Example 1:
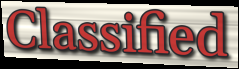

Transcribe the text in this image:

Classified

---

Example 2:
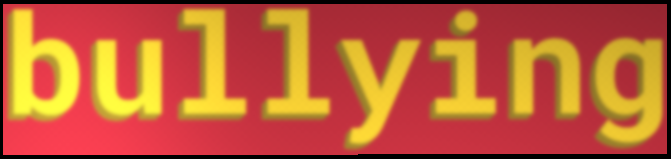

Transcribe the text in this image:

bullying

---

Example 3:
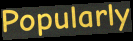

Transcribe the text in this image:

Popularly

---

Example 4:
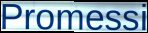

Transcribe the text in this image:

Promessi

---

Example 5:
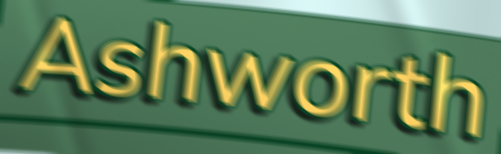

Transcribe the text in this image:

Ashworth